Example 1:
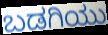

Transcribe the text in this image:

ಬಡಗಿಯು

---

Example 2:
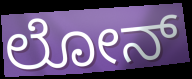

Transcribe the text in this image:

ಲೋನ್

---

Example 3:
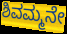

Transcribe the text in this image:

ಶಿವಮ್ಮನೇ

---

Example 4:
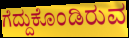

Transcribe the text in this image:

ಗೆದ್ದುಕೊಂಡಿರುವ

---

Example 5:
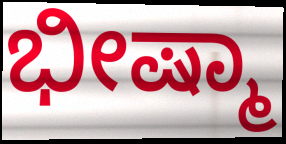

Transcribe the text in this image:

ಭೀಷ್ಮಾ